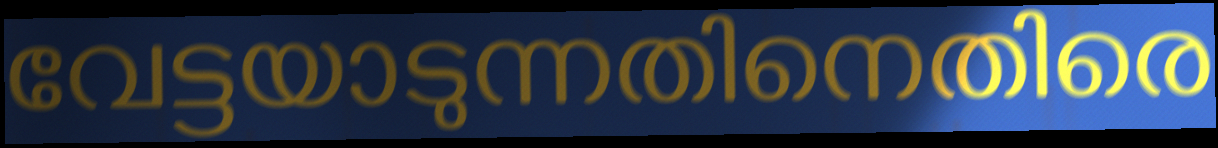
വേട്ടയാടുന്നതിനെതിരെ